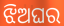
ଝିଅଘର